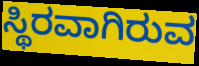
ಸ್ಥಿರವಾಗಿರುವ